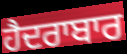
ਹੈਦਰਾਬਾਰ